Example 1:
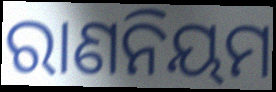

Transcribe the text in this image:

ରାଣନିୟମ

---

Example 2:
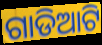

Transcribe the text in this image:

ଗାଡିଆଟି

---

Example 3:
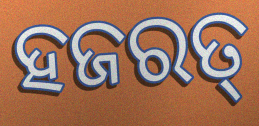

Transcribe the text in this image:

ହଜରତ୍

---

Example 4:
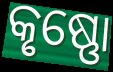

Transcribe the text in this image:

କୃଷ୍ଣୋ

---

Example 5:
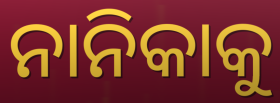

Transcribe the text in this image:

ନାନିକାକୁ